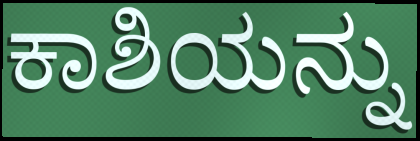
ಕಾಶಿಯನ್ನು